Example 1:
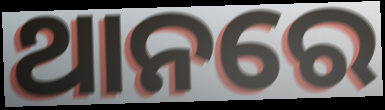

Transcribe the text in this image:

ଥାନରେ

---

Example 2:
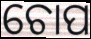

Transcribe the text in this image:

ଚୋପ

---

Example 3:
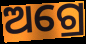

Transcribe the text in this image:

ଅଗ୍ରେ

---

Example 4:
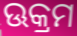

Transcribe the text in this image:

ଊକ୍ରମ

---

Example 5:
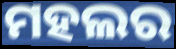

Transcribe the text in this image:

ମହଲର